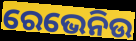
ରେଭେନିଉ